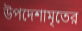
উপদেশামৃতের